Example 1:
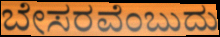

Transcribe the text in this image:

ಬೇಸರವೆಂಬುದು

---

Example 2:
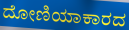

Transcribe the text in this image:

ದೋಣಿಯಾಕಾರದ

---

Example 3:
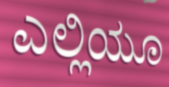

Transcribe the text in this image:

ಎಲ್ಲಿಯೂ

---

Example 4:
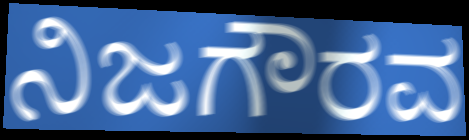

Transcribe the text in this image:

ನಿಜಗೌರವ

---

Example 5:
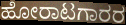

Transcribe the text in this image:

ಹೋರಾಟಗಾರರ